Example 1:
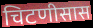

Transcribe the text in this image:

चिटणीसास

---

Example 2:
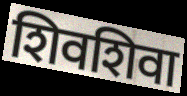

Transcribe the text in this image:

शिवशिवा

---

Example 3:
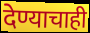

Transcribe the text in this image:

देण्याचाही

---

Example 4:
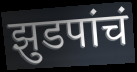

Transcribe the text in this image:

झुडपांचं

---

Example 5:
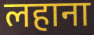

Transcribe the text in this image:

लहाना